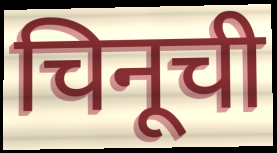
चिनूची